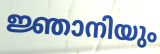
ജ്ഞാനിയും